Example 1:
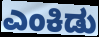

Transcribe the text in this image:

ಎಂಕಿಡು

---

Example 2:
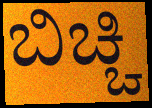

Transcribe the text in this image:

ಬಿಚ್ಚಿ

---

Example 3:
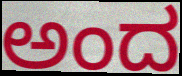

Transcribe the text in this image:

ಅಂದ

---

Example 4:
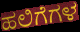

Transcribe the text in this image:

ಹಲಿಗೆಗಳ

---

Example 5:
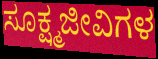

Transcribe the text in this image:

ಸೂಕ್ಷ್ಮಜೀವಿಗಳ